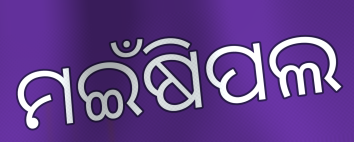
ମଇଁଷିପଲ